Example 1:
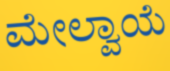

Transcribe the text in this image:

ಮೇಲ್ವಾಯೆ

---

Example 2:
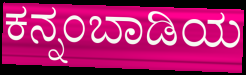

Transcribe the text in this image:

ಕನ್ನಂಬಾಡಿಯ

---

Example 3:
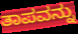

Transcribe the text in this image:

ತಾಪವನ್ನು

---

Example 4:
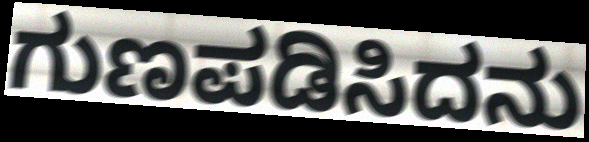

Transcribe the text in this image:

ಗುಣಪಡಿಸಿದನು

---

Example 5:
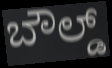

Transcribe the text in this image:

ಬೌಲ್ಡ್